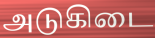
அடுகிடை